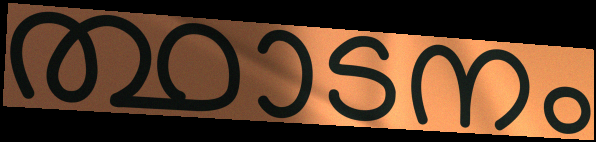
ത്ഥാടനം